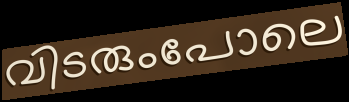
വിടരുംപോലെ